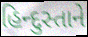
હિન્દુસ્તાને